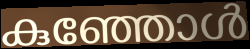
കുഞ്ഞോൾ